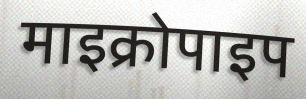
माइक्रोपाइप